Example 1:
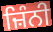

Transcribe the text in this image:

ਜ਼ਿੰਨੀ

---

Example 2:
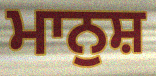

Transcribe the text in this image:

ਮਾਨੁਸ਼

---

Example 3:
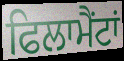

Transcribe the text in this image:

ਫਿਲਾਮੈਂਟਾਂ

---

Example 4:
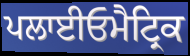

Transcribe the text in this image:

ਪਲਾਈਓਮੈਟ੍ਰਿਕ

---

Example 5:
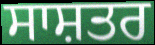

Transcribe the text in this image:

ਸਾਸ਼ਤਰ